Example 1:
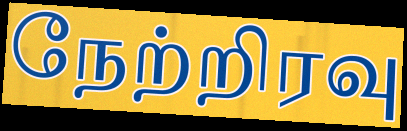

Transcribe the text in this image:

நேற்றிரவு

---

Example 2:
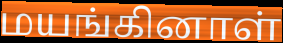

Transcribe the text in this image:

மயங்கினாள்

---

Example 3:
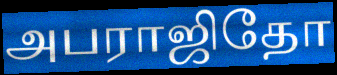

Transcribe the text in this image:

அபராஜிதோ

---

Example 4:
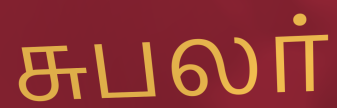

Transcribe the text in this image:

சுபலர்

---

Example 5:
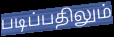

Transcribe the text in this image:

படிப்பதிலும்